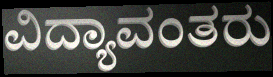
ವಿದ್ಯಾವಂತರು